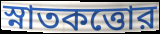
স্নাতকত্তোর